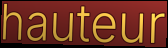
hauteur